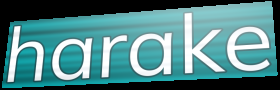
harake